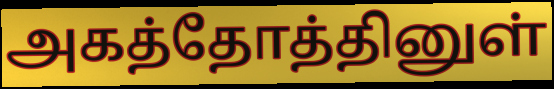
அகத்தோத்தினுள்